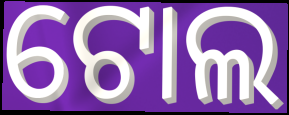
ଟୋଲ